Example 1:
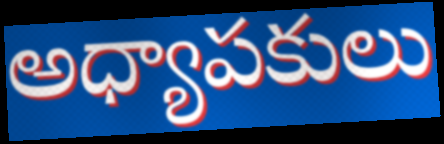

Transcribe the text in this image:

అధ్యాపకులు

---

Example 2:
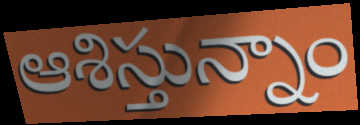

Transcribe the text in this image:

ఆశిస్తున్నాం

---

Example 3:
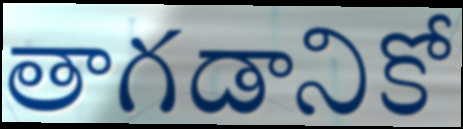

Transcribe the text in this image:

తాగడానికో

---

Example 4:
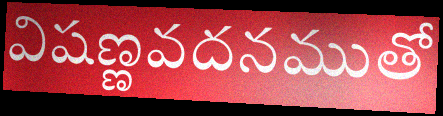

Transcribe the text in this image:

విషణ్ణవదనముతో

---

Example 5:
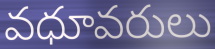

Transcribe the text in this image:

వధూవరులు